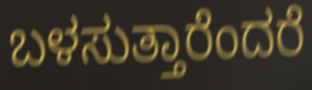
ಬಳಸುತ್ತಾರೆಂದರೆ